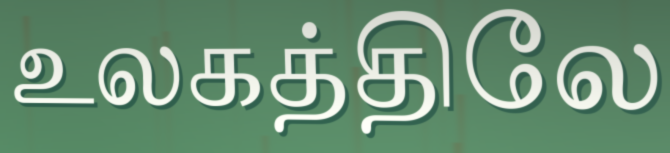
உலகத்திலே